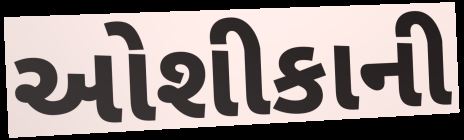
ઓશીકાની